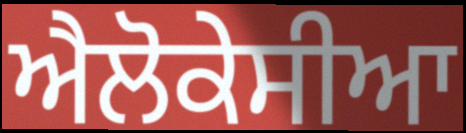
ਐਲੋਕੇਸੀਆ